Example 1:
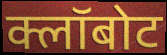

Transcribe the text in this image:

क्लॉबोट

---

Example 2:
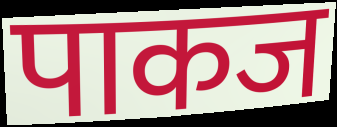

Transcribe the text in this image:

पाकज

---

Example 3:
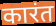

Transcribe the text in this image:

कारंत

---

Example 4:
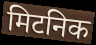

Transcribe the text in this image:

मिटनिक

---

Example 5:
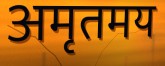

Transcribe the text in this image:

अमृतमय